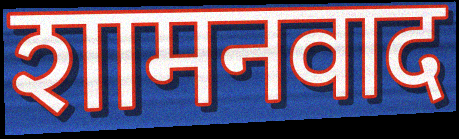
शामनवाद